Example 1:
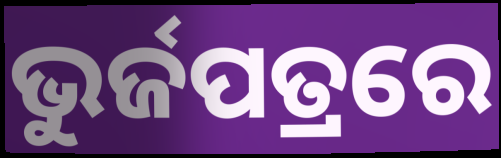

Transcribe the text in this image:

ଭୁର୍ଜପତ୍ରରେ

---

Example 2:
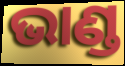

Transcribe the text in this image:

ଭାଣ୍ଡ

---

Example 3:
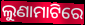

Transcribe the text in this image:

ଲୁଣାମାଟିରେ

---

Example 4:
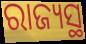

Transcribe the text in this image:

ରାଜ୍ୟସ୍ଥ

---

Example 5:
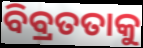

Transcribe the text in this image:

ବିବ୍ରତତାକୁ